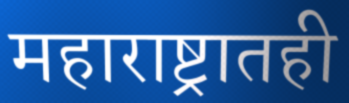
महाराष्ट्रातही